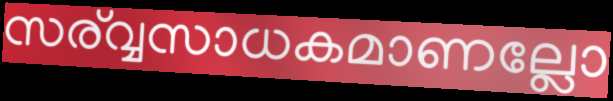
സര്വ്വസാധകമാണല്ലോ